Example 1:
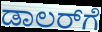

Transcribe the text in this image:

ಡಾಲರ್‌ಗೆ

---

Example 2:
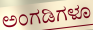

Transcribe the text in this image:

ಅಂಗಡಿಗಳೂ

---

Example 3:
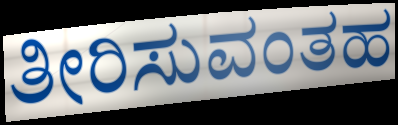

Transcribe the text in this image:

ತೀರಿಸುವಂತಹ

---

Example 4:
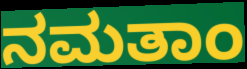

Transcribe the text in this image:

ನಮತಾಂ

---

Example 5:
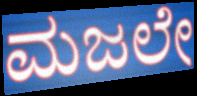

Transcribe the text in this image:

ಮಜಲೇ